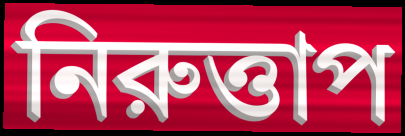
নিরুত্তাপ